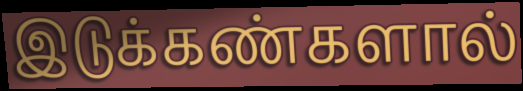
இடுக்கண்களால்